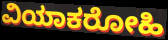
ವಿಯಾಕರೋಹಿ